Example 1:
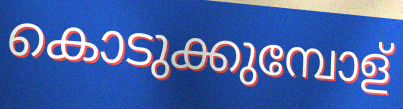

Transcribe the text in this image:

കൊടുക്കുമ്പോള്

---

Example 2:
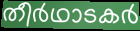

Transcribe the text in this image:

തീർഥാടകർ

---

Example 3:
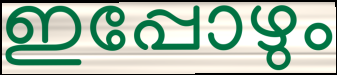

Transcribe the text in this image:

ഇപ്പോഴും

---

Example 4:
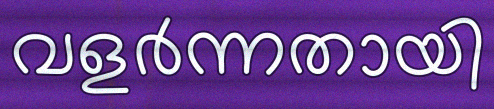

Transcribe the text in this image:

വളർന്നതായി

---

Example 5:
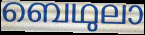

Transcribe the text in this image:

ബെഥുലാ